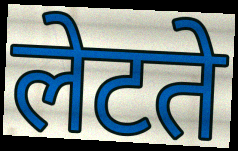
लेटते